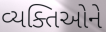
વ્યક્તિઓને